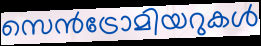
സെൻട്രോമിയറുകൾ